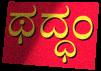
ಥದ್ಧಂ